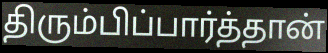
திரும்பிப்பார்த்தான்